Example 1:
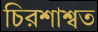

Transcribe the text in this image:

চিরশাশ্বত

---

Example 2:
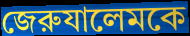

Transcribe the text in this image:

জেরুযালেমকে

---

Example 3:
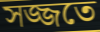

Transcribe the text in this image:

সজ্জতে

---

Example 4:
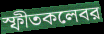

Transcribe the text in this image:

স্ফীতকলেবর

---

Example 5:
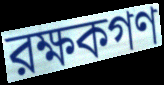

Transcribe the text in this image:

রক্ষকগণ